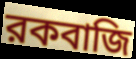
রকবাজি